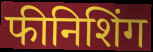
फीनिशिंग